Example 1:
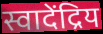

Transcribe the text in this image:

स्वादेंद्रिय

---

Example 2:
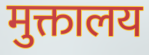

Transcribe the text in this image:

मुक्तालय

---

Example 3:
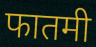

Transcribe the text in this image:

फातमी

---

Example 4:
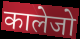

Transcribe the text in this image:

कालेजो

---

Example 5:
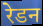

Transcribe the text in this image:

रेडन